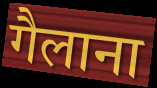
गैलाना